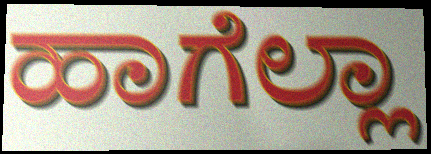
ಹಾಗೆಲ್ಲಾ